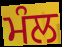
ਮੰਲ